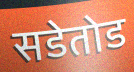
सडेतोड